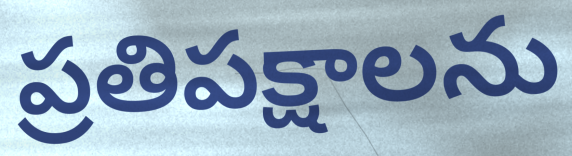
ప్రతిపక్షాలను